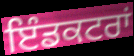
ਇੰਡਕਟਰਾਂ